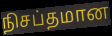
நிசப்தமான